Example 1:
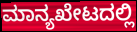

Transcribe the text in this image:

ಮಾನ್ಯಖೇಟದಲ್ಲಿ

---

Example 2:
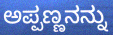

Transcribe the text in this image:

ಅಪ್ಪಣ್ಣನನ್ನು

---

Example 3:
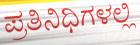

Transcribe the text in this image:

ಪ್ರತಿನಿಧಿಗಳಲ್ಲಿ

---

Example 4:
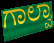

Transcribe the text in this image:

ಗಾಲ್ವಾ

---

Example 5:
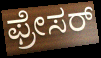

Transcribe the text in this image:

ಫ್ರೇಸರ್